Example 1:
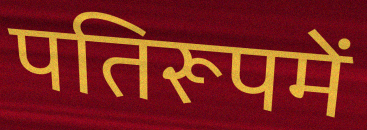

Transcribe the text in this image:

पतिरूपमें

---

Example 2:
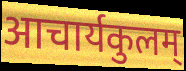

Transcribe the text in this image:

आचार्यकुलम्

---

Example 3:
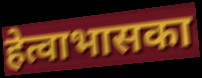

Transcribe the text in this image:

हेत्वाभासका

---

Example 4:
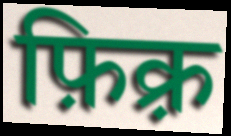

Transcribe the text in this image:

फ़िक़्र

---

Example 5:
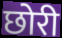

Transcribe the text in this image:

छोरी